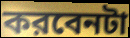
করবেনটা